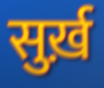
सुर्ख़